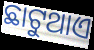
ଛାଟୁଥାଏ